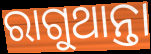
ରାଗୁଥାନ୍ତା